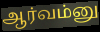
ஆர்வம்னு